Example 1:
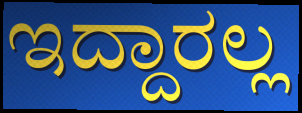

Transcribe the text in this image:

ಇದ್ದಾರಲ್ಲ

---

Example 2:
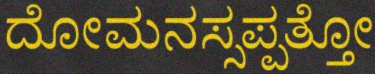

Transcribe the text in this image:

ದೋಮನಸ್ಸಪ್ಪತ್ತೋ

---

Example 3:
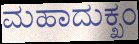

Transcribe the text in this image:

ಮಹಾದುಕ್ಖಂ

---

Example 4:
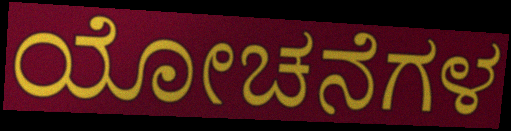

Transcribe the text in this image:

ಯೋಚನೆಗಳ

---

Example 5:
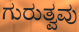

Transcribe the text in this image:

ಗುರುತ್ವವು